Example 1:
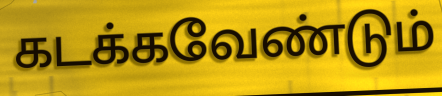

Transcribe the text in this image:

கடக்கவேண்டும்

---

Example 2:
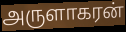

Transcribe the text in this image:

அருளாகரன்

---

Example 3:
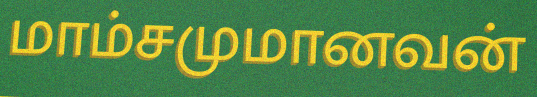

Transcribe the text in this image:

மாம்சமுமானவன்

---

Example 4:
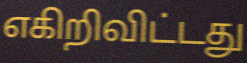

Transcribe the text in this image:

எகிறிவிட்டது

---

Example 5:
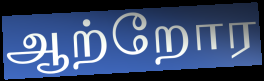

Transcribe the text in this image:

ஆற்றோர